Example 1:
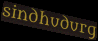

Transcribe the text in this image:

sindhudurg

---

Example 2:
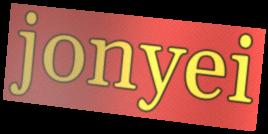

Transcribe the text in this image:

jonyei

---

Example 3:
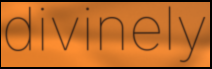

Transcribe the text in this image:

divinely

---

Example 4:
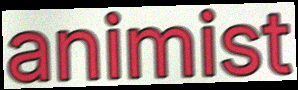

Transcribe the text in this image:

animist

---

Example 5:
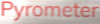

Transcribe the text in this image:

Pyrometer